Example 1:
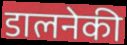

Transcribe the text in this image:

डालनेकी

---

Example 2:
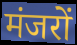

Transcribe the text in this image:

मंजरों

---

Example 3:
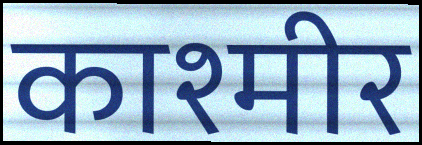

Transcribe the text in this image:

काश्मीर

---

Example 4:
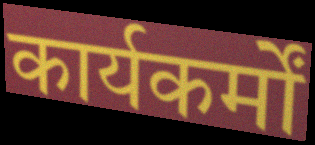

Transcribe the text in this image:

कार्यकर्मों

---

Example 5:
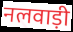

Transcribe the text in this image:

नलवाड़ी